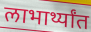
लाभार्थ्यांत